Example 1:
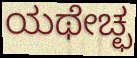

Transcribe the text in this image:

ಯಥೇಚ್ಛ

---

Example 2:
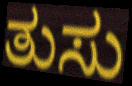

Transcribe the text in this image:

ತುಸು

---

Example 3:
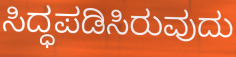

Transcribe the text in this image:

ಸಿದ್ಧಪಡಿಸಿರುವುದು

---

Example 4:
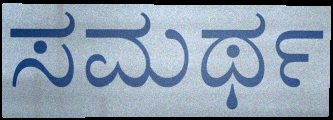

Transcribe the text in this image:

ಸಮರ್ಥ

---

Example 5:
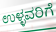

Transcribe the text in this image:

ಉಳ್ಳವರಿಗೆ